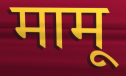
मामू